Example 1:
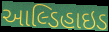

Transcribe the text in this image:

આલ્ડિહાઇડ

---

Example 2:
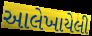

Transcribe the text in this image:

આલેખાયેલી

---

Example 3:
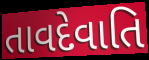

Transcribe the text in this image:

તાવદેવાતિ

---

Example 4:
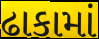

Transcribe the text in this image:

ઢાકામાં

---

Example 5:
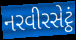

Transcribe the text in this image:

નરવીરસેટ્ઠં